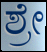
ಶ್ರೇ